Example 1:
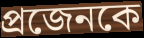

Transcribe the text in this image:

প্রজেনকে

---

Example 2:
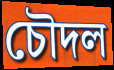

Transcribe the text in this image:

চৌদল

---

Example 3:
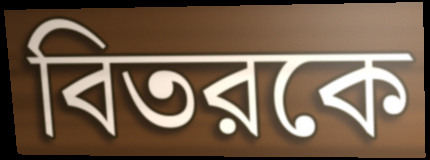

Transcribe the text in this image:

বিতরকে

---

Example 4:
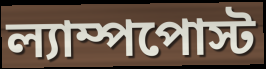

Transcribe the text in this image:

ল্যাম্পপোস্ট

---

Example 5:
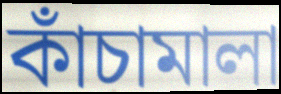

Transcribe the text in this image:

কাঁচামালা